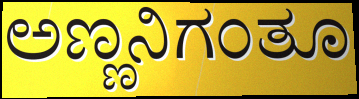
ಅಣ್ಣನಿಗಂತೂ